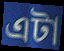
এটা